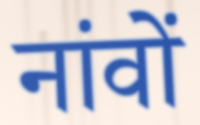
नांवों